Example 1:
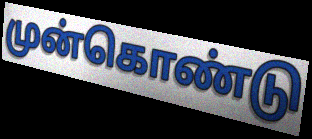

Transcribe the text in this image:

முன்கொண்டு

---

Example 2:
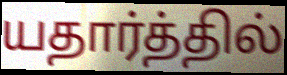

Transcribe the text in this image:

யதார்த்தில்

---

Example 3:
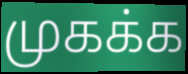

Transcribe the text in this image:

முகக்க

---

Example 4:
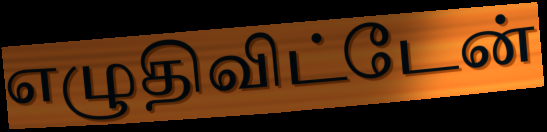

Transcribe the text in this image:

எழுதிவிட்டேன்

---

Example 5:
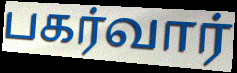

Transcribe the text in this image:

பகர்வார்